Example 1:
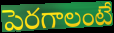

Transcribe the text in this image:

పెరగాలంటే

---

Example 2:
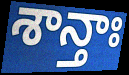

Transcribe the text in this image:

శాన్తాః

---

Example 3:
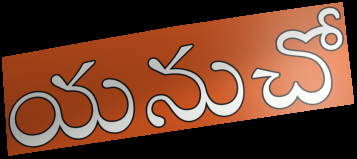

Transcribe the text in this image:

యనుచో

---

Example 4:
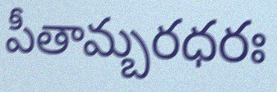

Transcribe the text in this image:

పీతామ్బరధరః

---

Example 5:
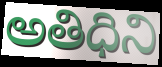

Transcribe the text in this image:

అతిధిని